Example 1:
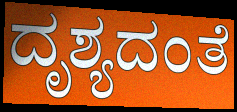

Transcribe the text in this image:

ದೃಶ್ಯದಂತೆ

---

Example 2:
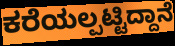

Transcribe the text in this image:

ಕರೆಯಲ್ಪಟ್ಟಿದ್ದಾನೆ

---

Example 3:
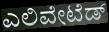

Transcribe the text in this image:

ಎಲಿವೇಟೆಡ್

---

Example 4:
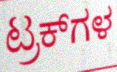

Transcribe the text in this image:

ಟ್ರಕ್‌ಗಳ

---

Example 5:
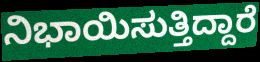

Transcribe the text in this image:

ನಿಭಾಯಿಸುತ್ತಿದ್ದಾರೆ